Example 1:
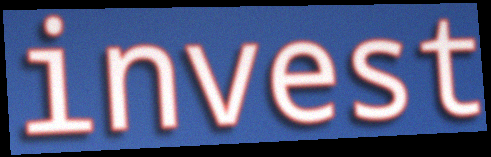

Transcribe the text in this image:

invest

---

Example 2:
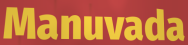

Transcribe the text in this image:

Manuvada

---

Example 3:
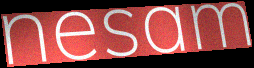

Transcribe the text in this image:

nesam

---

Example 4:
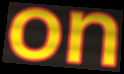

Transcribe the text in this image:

on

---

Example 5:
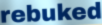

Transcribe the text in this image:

rebuked